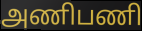
அணிபணி